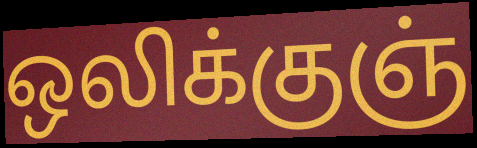
ஒலிக்குஞ்